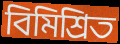
বিমিশ্রিত